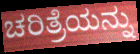
ಚರಿತ್ರೆಯನ್ನು